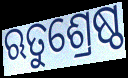
ଋତୁଶ୍ରେଷ୍ଠ